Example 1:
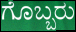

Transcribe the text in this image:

ಗೊಬ್ಬರು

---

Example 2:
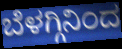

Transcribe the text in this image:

ಬೆಳಗ್ಗಿನಿಂದ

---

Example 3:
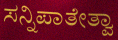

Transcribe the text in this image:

ಸನ್ನಿಪಾತೇತ್ವಾ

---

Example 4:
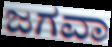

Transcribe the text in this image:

ಜಗವಾ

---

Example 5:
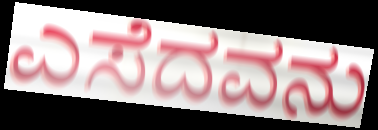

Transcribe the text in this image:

ಎಸೆದವನು